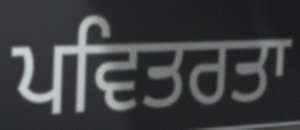
ਪਵਿਤਰਤਾ